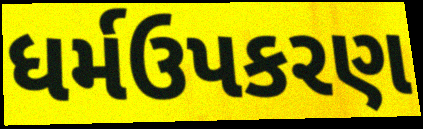
ધર્મઉપકરણ